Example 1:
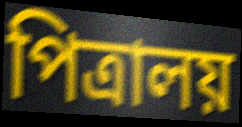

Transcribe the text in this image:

পিত্রালয়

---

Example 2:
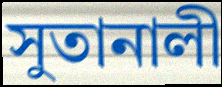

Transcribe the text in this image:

সুতানালী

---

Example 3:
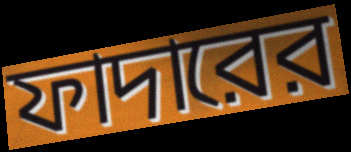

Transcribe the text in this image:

ফাদারের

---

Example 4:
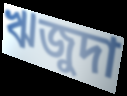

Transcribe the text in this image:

ঋজুদা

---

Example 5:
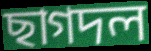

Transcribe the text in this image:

ছাগদল